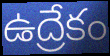
ఉద్రేకం